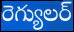
రెగ్యులర్